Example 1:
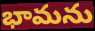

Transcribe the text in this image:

భామను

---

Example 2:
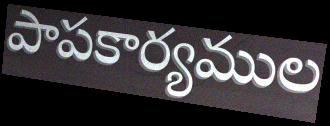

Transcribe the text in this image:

పాపకార్యముల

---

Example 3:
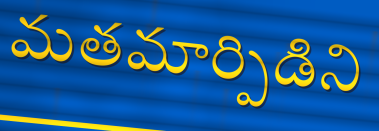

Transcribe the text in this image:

మతమార్పిడిని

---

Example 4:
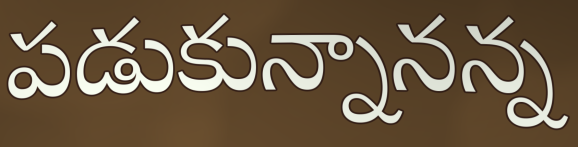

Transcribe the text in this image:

పడుకున్నానన్న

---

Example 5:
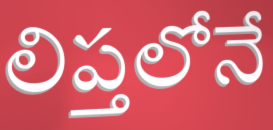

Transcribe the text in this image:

లిప్తలోనే